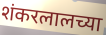
शंकरलालच्या